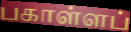
பகாள்ளப்